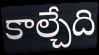
కాల్చేది